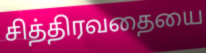
சித்திரவதையை